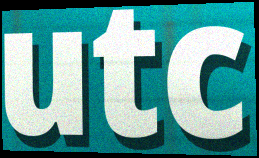
utc